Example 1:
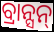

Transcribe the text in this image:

ବ୍ରାନ୍ସନ୍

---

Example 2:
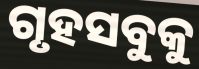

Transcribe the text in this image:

ଗୃହସବୁକୁ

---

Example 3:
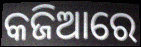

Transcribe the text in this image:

କଜିଆରେ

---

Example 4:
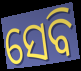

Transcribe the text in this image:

ସେବି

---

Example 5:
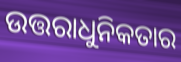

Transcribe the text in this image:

ଉତ୍ତରାଧୁନିକତାର